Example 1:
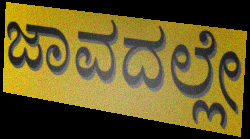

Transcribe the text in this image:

ಜಾವದಲ್ಲೇ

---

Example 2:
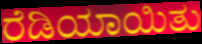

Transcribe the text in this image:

ರೆಡಿಯಾಯಿತು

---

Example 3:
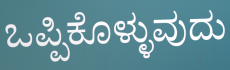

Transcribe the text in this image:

ಒಪ್ಪಿಕೊಳ್ಳುವುದು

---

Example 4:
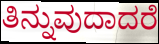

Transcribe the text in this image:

ತಿನ್ನುವುದಾದರೆ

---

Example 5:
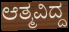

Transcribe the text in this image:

ಆತ್ಮವಿದ್ದ